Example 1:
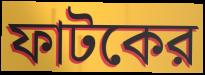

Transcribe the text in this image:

ফাটকের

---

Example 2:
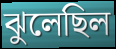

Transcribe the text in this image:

ঝুলেছিল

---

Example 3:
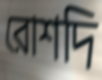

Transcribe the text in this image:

রোশদি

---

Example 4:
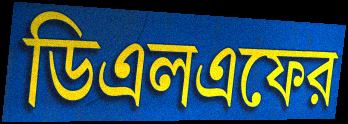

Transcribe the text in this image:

ডিএলএফের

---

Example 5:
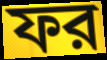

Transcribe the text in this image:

ফর